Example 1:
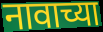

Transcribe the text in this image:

नावाच्या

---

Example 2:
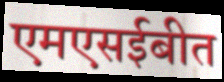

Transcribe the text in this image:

एमएसईबीत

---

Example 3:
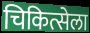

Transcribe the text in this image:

चिकित्सेला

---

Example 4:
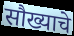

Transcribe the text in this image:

सौख्याचे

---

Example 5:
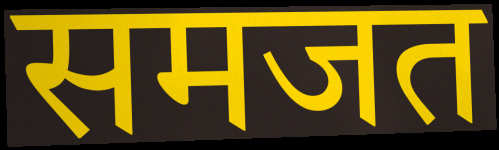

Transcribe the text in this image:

समजत